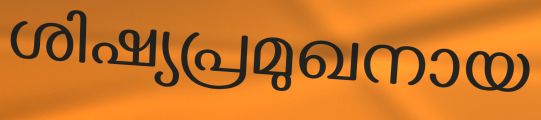
ശിഷ്യപ്രമുഖനായ